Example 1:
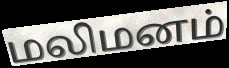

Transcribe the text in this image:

மலிமனம்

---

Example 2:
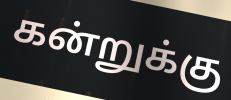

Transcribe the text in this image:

கன்றுக்கு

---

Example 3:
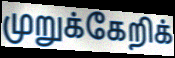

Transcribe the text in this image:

முறுக்கேறிக்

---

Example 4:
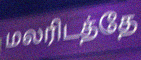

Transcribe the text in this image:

மலரிடத்தே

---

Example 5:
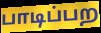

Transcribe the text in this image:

பாடிப்பற